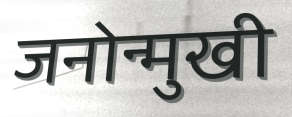
जनोन्मुखी